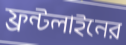
ফ্রন্টলাইনের